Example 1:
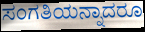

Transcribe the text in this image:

ಸಂಗತಿಯನ್ನಾದರೂ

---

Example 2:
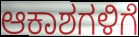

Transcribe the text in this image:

ಆಕಾಶಗಳಿಗೆ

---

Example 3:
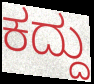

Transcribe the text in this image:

ಕದ್ದು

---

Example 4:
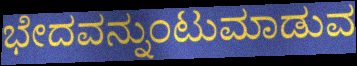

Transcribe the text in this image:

ಭೇದವನ್ನುಂಟುಮಾಡುವ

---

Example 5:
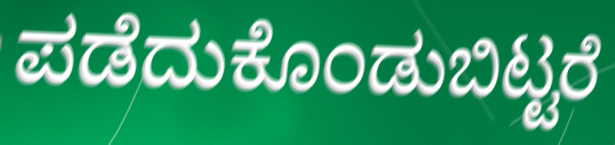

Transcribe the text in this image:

ಪಡೆದುಕೊಂಡುಬಿಟ್ಟರೆ